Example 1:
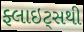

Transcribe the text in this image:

ફ્લાઇટ્સથી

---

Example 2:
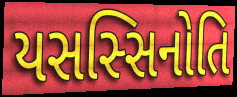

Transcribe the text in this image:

યસસ્સિનોતિ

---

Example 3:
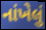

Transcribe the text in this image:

નાંખેલું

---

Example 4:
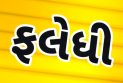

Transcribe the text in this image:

ફલેધી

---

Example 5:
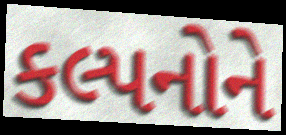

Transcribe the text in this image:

કલ્પનોને